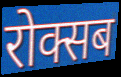
रोक्सब